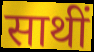
साथीं